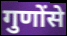
गुणोंसे